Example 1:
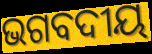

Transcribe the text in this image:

ଭଗବଦୀୟ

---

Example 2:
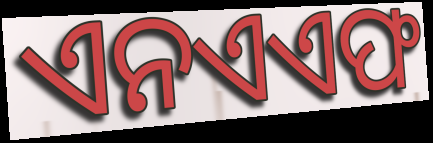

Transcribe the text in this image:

ଏନଏଏଫ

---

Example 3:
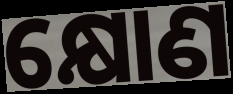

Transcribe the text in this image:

କ୍ଷୋଣ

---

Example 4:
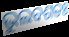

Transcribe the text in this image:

ଭୁଲବଶତଃ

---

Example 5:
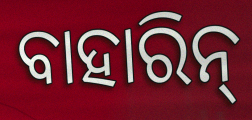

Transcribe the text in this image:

ବାହାରିନ୍